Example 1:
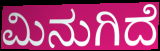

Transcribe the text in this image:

ಮಿನುಗಿದೆ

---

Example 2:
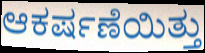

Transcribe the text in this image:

ಆಕರ್ಷಣೆಯಿತ್ತು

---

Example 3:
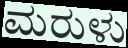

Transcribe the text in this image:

ಮರುಳು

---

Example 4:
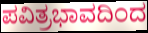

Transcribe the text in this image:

ಪವಿತ್ರಭಾವದಿಂದ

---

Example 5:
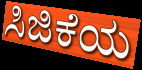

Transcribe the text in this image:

ಸಿಜಿಕೆಯ